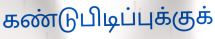
கண்டுபிடிப்புக்குக்